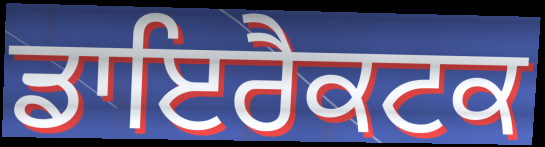
ਡਾਇਰੈਕਟਕ